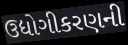
ઉદ્યોગીકરણની